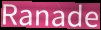
Ranade